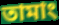
তামাং